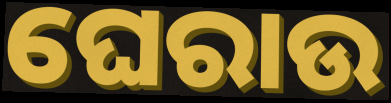
ଘେରାଉ